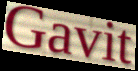
Gavit